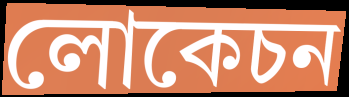
লোকেচন